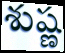
శుష్ణ